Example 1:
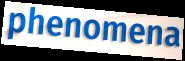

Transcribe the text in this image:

phenomena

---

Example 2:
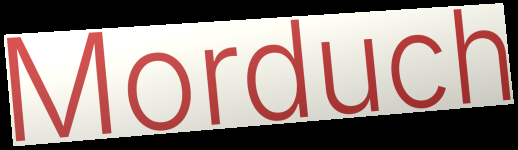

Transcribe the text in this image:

Morduch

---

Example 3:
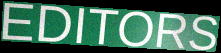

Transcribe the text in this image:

EDITORS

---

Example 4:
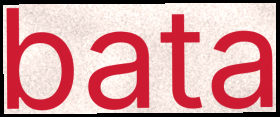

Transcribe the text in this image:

bata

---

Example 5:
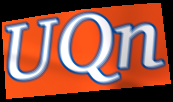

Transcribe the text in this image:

UQn